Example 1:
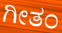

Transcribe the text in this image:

ಗೀತಂ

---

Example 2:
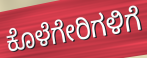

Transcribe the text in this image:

ಕೊಳೆಗೇರಿಗಳಿಗೆ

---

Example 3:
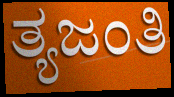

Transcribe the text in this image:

ತ್ಯಜಂತಿ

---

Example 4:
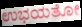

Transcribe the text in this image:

ಉಭಯತೋ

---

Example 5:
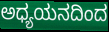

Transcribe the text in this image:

ಅಧ್ಯಯನದಿಂದ